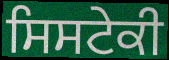
ਸਿਸਟੇਕੀ